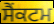
ਸੈੰਕਟਮ